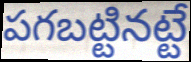
పగబట్టినట్టే